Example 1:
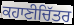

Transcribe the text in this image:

ਕਹਾਣੀਚਿੱਤਰ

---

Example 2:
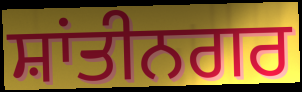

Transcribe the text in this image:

ਸ਼ਾਂਤੀਨਗਰ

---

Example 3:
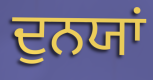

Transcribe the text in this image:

ਦੁਨਯਾਂ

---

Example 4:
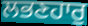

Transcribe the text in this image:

ਲਭਣਹਾਰੁ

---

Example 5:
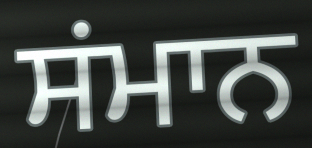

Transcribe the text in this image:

ਸਂਮਾਨ